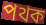
পথক